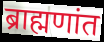
ब्राह्मणांत